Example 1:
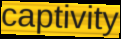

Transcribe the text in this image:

captivity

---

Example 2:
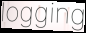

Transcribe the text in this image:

logging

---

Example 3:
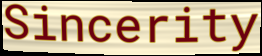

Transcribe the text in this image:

Sincerity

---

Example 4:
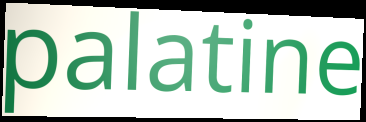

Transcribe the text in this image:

palatine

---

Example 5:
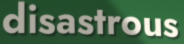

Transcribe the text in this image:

disastrous